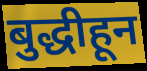
बुद्धीहून